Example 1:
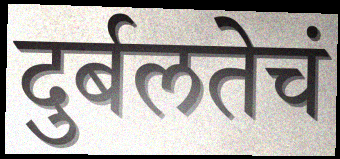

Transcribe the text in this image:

दुर्बलतेचं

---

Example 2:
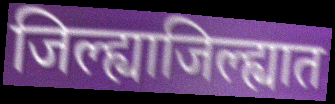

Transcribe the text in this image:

जिल्ह्याजिल्ह्यात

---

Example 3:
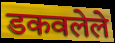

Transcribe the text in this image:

डकवलेले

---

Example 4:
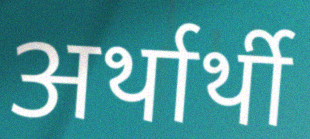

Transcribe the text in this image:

अर्थार्थी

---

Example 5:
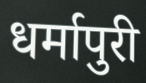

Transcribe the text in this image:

धर्मापुरी